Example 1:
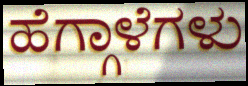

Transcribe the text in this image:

ಹೆಗ್ಗಾಳೆಗಳು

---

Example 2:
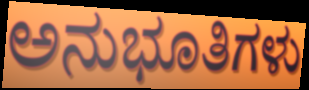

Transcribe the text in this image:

ಅನುಭೂತಿಗಳು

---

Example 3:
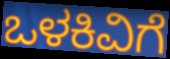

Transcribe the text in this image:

ಒಳಕಿವಿಗೆ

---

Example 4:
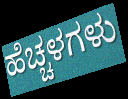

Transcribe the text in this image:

ಹೆಚ್ಚಳಗಳು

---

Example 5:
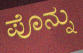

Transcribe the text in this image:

ಪೊನ್ನು